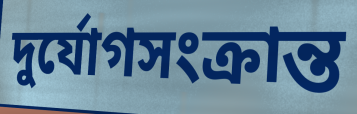
দুর্যোগসংক্রান্ত